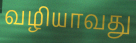
வழியாவது